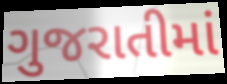
ગુજરાતીમાં